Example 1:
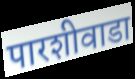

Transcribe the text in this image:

पारशीवाडा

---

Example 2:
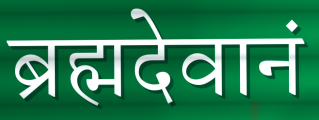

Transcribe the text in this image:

ब्रह्मदेवानं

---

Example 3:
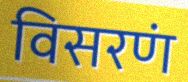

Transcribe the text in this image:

विसरणं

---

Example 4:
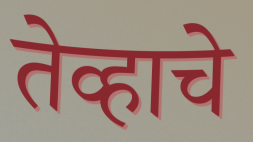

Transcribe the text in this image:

तेव्हाचे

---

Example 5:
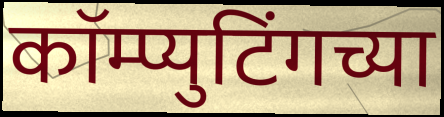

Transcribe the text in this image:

कॉम्प्युटिंगच्या